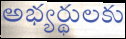
అభ్యర్థులకు